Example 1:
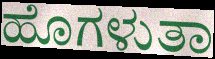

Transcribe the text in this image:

ಹೊಗಳುತಾ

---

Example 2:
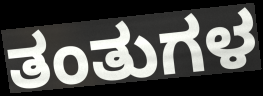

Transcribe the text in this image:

ತಂತುಗಳ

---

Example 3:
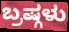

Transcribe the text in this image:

ಬ್ರಷ್ಗಳು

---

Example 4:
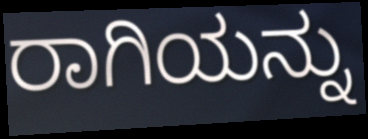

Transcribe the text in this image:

ರಾಗಿಯನ್ನು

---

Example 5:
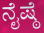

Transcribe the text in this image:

ನೈಷ್ಠೆ